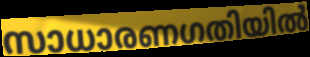
സാധാരണഗതിയിൽ